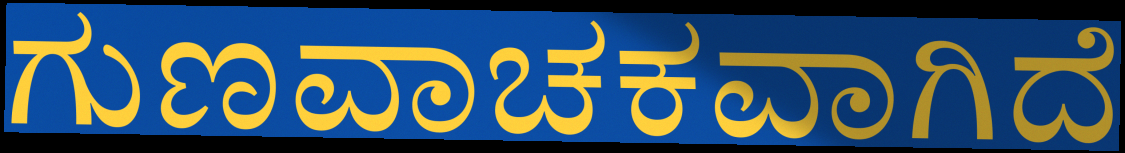
ಗುಣವಾಚಕವಾಗಿದೆ